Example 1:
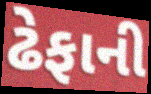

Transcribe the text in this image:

ઢેફાની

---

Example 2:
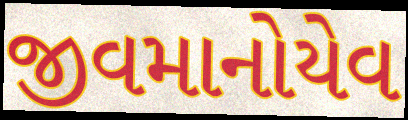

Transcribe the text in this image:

જીવમાનોયેવ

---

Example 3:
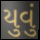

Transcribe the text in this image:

યુવું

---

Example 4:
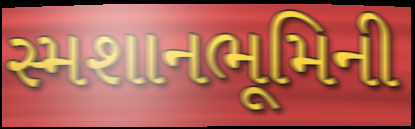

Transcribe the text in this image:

સ્મશાનભૂમિની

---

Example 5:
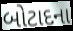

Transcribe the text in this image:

બોટાદના